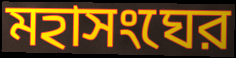
মহাসংঘের